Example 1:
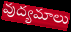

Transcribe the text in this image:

వుద్యమాలు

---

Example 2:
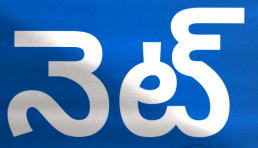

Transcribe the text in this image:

నెట్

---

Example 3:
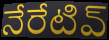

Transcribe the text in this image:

నేరేటివ్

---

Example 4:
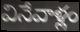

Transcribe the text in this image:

వినేవాళ్లం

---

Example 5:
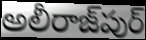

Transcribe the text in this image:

అలీరాజ్‌పుర్